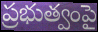
ప్రభుత్వంపై